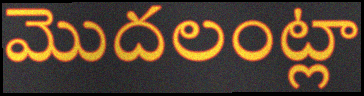
మొదలంట్లా